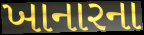
ખાનારના